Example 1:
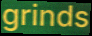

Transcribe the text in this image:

grinds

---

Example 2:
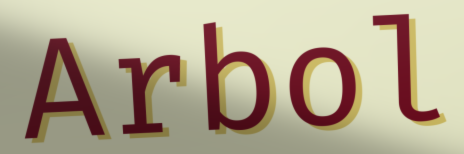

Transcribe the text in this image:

Arbol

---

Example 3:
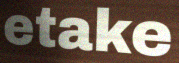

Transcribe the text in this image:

etake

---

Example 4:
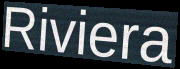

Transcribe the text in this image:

Riviera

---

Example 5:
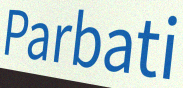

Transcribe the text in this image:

Parbati